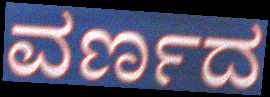
ವರ್ಣದ